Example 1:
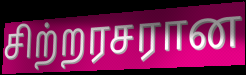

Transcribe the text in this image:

சிற்றரசரான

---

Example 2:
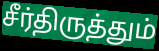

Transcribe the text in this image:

சீர்திருத்தும்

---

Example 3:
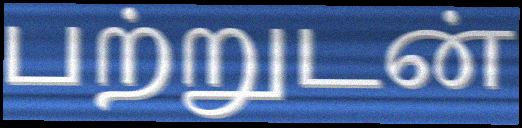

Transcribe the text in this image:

பற்றுடன்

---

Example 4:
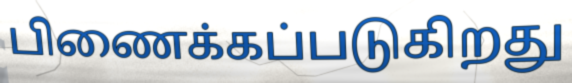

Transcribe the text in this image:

பிணைக்கப்படுகிறது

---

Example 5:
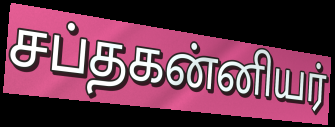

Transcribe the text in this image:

சப்தகன்னியர்